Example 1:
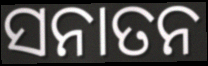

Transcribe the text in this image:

ସନାତନ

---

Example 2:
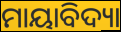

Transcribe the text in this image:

ମାୟାବିଦ୍ୟା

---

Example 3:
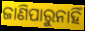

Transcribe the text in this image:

ଜାଣିପାରୁନାହିଁ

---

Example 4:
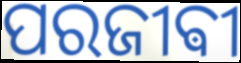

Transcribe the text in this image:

ପରଜୀଵୀ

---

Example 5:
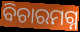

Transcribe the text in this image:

ବିଚାରମଗ୍ନ